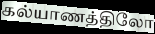
கல்யாணத்திலோ